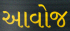
આવોજ